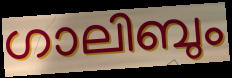
ഗാലിബും